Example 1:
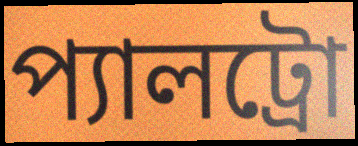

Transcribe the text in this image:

প্যালট্রো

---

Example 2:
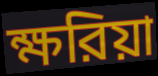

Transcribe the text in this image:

ক্ষরিয়া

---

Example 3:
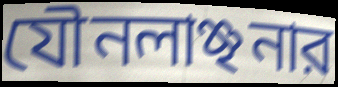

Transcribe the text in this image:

যৌনলাঞ্ছনার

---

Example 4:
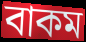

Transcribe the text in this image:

বাকম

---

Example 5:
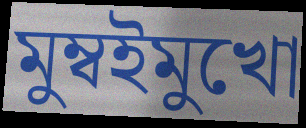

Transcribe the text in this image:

মুম্বইমুখো